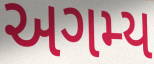
અગમ્ય